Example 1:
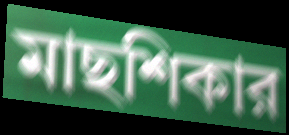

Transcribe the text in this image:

মাছশিকার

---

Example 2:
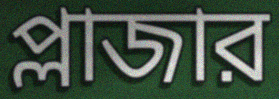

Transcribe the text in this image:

প্লাজার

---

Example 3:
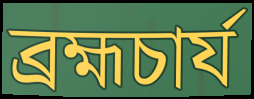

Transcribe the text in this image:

ব্রহ্মচার্য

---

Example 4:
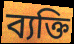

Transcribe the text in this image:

ব্যক্তি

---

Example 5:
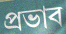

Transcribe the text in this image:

প্রভাব